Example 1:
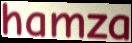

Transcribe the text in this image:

hamza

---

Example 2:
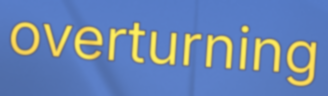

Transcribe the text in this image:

overturning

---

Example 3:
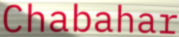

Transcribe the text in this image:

Chabahar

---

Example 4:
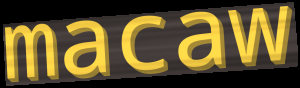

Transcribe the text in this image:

macaw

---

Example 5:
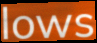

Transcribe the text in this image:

lows